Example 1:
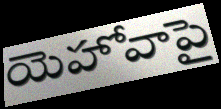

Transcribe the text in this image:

యెహోవాపై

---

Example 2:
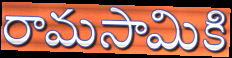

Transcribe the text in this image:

రామసామికి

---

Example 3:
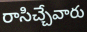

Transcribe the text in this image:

రాసిచ్చేవారు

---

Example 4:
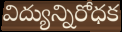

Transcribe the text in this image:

విద్యున్నిరోధక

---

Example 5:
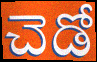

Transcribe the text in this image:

చెడో